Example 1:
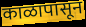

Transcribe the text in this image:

काळापासून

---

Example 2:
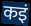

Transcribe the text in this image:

कइं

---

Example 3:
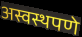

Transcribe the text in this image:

अस्वस्थपणे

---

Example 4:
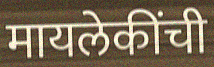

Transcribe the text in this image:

मायलेकींची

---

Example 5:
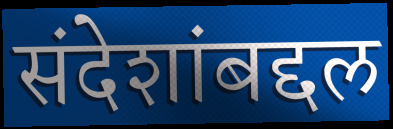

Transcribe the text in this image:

संदेशांबद्दल